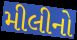
મીલીનો